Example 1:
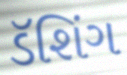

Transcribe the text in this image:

ડૅશિંગ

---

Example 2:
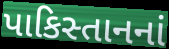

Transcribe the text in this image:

પાકિસ્તાનનાં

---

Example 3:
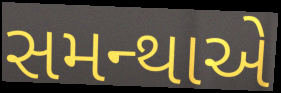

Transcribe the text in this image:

સમન્થાએ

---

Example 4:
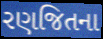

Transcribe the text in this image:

રણજિતના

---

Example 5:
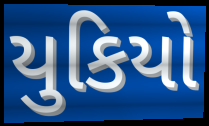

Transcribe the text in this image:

યુકિયો